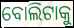
ବୋଲିଟାକୁ